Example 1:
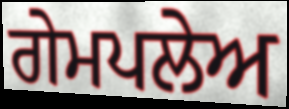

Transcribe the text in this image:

ਗੇਮਪਲੇਅ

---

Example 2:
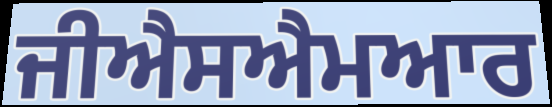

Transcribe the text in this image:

ਜੀਐਸਐਮਆਰ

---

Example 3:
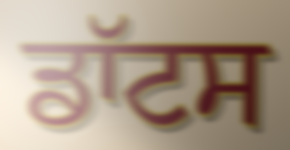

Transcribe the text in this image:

ਡਾੱਟਸ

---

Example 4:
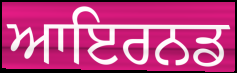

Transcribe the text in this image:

ਆਇਰਨਡ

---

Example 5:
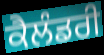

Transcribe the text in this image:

ਕੈਲੰਡਰੀ